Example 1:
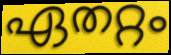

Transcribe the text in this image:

ഏതറ്റം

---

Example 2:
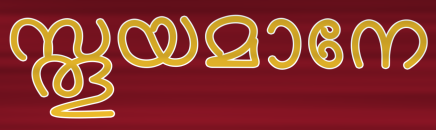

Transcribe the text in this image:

സ്തൂയമാനേ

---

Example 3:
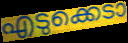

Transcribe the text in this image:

എടുക്കെടാ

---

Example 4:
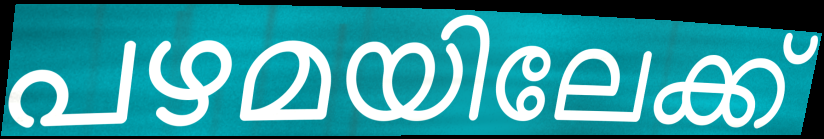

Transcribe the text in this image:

പഴമയിലേക്ക്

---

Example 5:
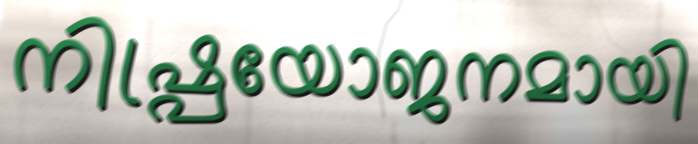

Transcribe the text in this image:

നിഷ്പ്രയോജനമായി